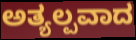
ಅತ್ಯಲ್ಪವಾದ